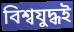
বিশ্বযুদ্ধই